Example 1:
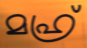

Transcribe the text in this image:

മഹ്ര്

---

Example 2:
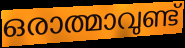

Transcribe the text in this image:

ഒരാത്മാവുണ്ട്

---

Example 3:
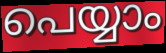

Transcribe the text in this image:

പെയ്യാം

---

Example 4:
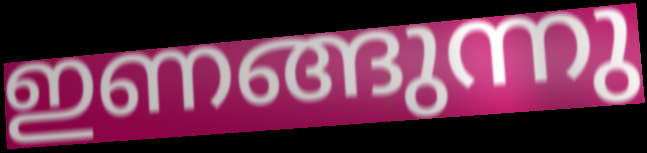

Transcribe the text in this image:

ഇണങ്ങുന്നു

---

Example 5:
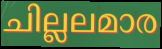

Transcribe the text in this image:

ചില്ലലമാര